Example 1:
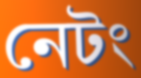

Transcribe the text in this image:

নেটং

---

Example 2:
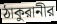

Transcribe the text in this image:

ঠাকুরানীর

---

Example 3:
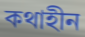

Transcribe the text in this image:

কথাহীন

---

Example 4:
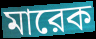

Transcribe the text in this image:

মারেক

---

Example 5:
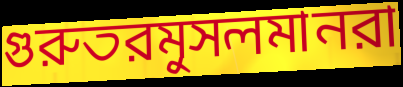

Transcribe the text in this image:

গুরুতরমুসলমানরা